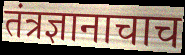
तंत्रज्ञानाचाच